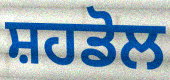
ਸ਼ਹਡੋਲ